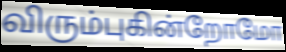
விரும்புகின்றோமோ